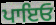
ਪਾਇਓ